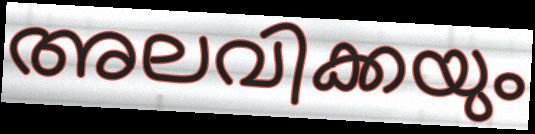
അലവിക്കയും